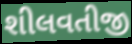
શીલવતીજી